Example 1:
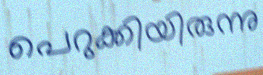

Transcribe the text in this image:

പെറുക്കിയിരുന്നു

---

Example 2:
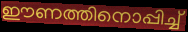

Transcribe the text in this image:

ഈണത്തിനൊപ്പിച്ച്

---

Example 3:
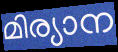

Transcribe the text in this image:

മിര്യാന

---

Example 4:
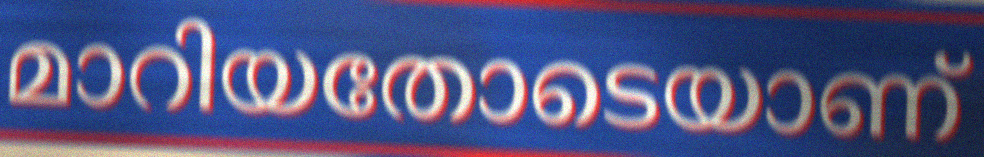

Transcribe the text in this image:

മാറിയതോടെയാണ്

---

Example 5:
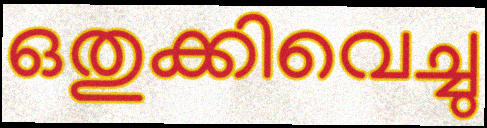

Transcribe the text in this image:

ഒതുക്കിവെച്ചു